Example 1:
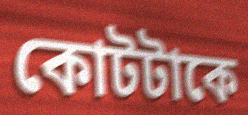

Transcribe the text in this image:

কোটটাকে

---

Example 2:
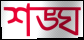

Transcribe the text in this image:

শঙ্ঘ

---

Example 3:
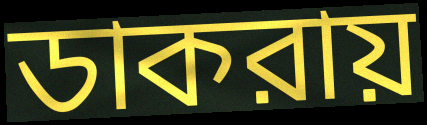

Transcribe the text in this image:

ডাকরায়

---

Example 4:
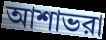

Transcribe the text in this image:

আশাভরা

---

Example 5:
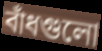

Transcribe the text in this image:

বাঁধগুলো